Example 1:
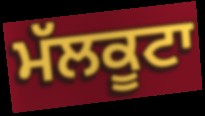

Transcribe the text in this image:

ਮੱਲਕੂਟਾ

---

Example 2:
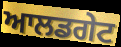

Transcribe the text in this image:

ਆਲਡਗੇਟ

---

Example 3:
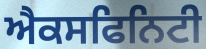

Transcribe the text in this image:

ਐਕਸਫਿਨਿਟੀ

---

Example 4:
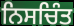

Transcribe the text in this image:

ਨਿਸਚਿੰਤ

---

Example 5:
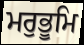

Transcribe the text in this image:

ਮਰੁਭੂਮਿ